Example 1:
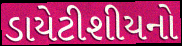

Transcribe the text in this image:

ડાયેટીશીયનો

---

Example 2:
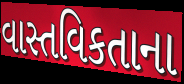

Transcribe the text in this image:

વાસ્તવિકતાના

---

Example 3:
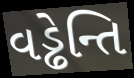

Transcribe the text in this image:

વડ્ઢેન્તિ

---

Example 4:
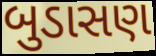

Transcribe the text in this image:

બુડાસણ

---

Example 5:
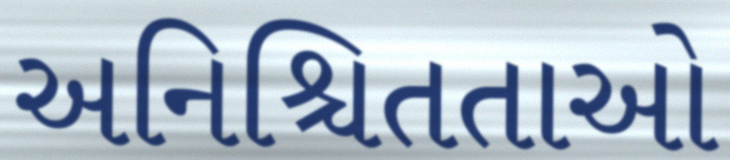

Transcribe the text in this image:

અનિશ્ચિતતાઓ